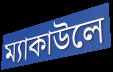
ম্যাকাউলে